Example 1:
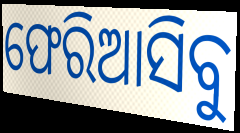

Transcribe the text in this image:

ଫେରିଆସିବୁ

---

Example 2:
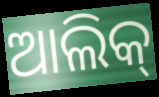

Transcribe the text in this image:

ଆଲିକ୍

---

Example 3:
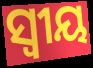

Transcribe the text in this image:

ସ୍ବୀୟ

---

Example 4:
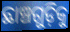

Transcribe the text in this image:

ଛାଞ୍ଚଗୁଡ଼ିକୁ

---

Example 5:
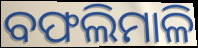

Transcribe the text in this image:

ବଫଲିମାଳି